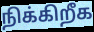
நிக்கிறீக